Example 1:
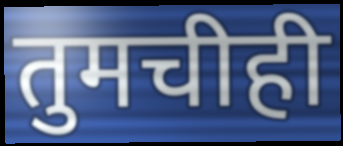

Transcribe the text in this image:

तुमचीही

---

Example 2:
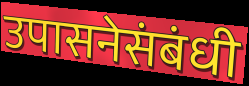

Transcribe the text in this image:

उपासनेसंबंधी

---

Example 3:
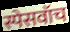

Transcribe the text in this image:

स्पेसवॉच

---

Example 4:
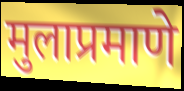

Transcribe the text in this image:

मुलाप्रमाणे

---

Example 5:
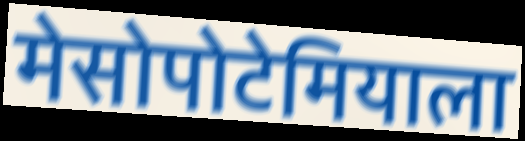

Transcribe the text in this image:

मेसोपोटेमियाला